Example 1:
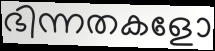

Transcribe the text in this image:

ഭിന്നതകളോ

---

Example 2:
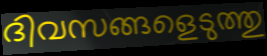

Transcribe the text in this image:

ദിവസങ്ങളെടുത്തു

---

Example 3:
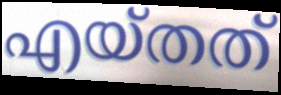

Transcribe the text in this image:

എയ്തത്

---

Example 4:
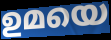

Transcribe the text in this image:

ഉമയെ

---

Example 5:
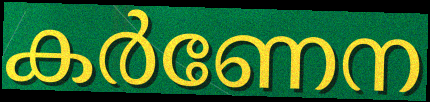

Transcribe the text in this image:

കർണേന